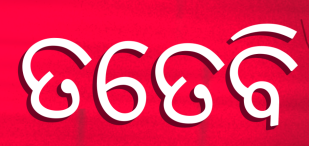
ତତେବି